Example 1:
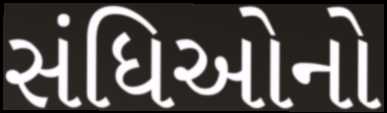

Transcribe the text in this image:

સંધિઓનો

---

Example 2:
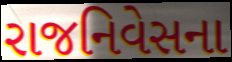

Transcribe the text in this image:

રાજનિવેસના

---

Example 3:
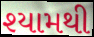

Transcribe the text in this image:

શ્યામથી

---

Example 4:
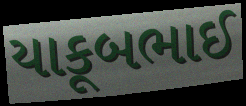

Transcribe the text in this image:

યાકૂબભાઈ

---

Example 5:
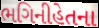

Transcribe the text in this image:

ભગિનીહેતના